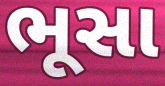
ભૂસા